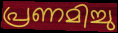
പ്രണമിച്ചു